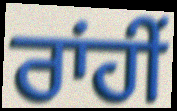
ਰਾਂਹੀਂ